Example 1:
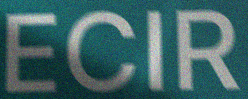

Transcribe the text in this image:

ECIR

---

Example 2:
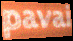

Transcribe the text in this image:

pavai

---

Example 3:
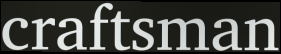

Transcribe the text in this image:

craftsman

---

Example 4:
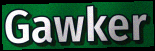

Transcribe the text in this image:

Gawker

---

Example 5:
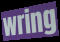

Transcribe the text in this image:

wring